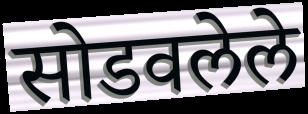
सोडवलेले